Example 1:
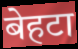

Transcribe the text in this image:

बेहटा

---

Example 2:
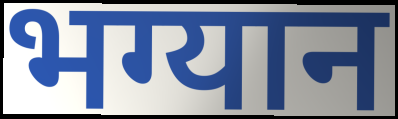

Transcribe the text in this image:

भग्यान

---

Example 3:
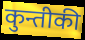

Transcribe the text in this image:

कुन्तीकी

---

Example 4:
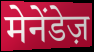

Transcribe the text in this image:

मेनेंडेज़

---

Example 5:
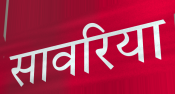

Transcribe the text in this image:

सावरिया